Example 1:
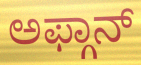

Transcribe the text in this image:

ಅಫ್ಗಾನ್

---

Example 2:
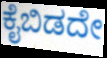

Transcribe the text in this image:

ಕೈಬಿಡದೇ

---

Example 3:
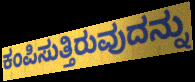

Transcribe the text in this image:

ಕಂಪಿಸುತ್ತಿರುವುದನ್ನು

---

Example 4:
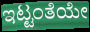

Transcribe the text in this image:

ಇಟ್ಟಂತೆಯೇ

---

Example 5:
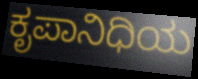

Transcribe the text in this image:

ಕೃಪಾನಿಧಿಯ